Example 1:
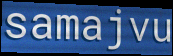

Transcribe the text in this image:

samajvu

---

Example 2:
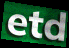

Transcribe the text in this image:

etd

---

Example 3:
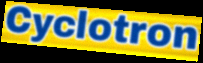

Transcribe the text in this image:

Cyclotron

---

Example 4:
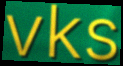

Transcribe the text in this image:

vks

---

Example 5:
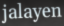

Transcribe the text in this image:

jalayen